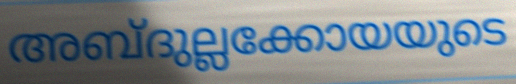
അബ്ദുല്ലക്കോയയുടെ